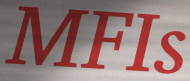
MFIs